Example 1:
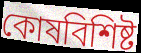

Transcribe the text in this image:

কোষবিশিষ্ট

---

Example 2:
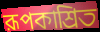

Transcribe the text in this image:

রূপকাশ্রিত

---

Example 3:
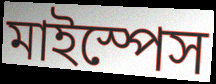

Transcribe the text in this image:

মাইস্পেস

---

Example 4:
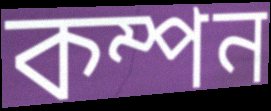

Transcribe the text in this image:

কম্পন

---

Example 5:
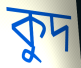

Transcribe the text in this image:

কুদ